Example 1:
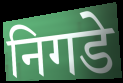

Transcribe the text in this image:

निगडे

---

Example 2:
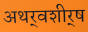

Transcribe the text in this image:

अथर्वशीर्ष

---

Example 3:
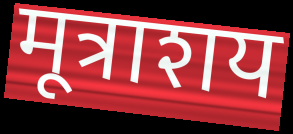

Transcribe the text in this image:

मूत्राशय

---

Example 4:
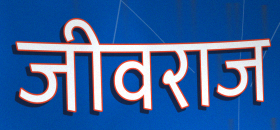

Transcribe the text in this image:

जीवराज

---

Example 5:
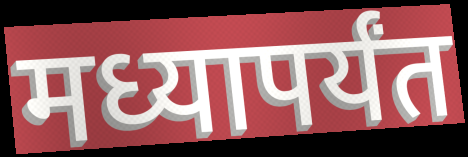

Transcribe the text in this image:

मध्यापर्यंत